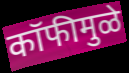
कॉफीमुळे